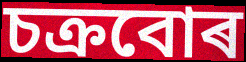
চক্ৰবোৰ